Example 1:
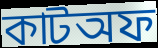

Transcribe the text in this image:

কাটঅফ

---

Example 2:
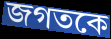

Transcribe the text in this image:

জগতকে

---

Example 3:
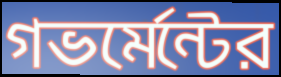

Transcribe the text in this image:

গভর্মেন্টের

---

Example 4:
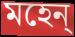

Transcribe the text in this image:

মহেন্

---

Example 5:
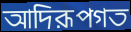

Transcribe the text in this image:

আদিরূপগত